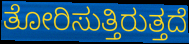
ತೋರಿಸುತ್ತಿರುತ್ತದೆ